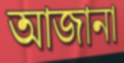
আজানা